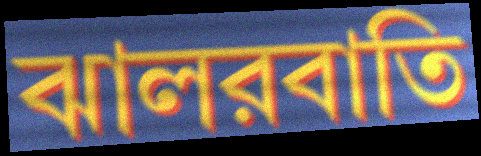
ঝালরবাতি